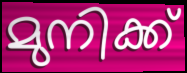
മുനിക്ക്